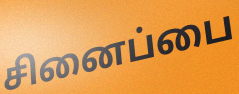
சினைப்பை